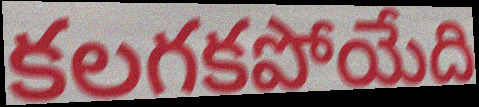
కలగకపోయేది